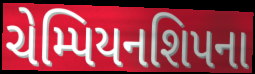
ચેમ્પિયનશિપના